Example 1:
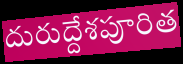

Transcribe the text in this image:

దురుద్దేశపూరిత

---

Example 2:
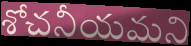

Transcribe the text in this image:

శోచనీయమని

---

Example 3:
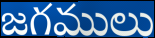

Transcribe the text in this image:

జగములు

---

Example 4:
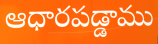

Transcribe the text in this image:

ఆధారపడ్డాము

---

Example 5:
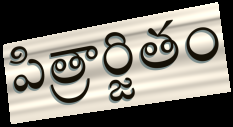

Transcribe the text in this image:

పిత్రార్జితం